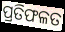
ପ୍ରତିଫଳତ